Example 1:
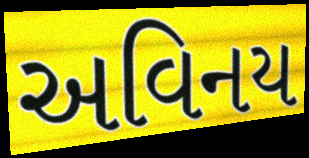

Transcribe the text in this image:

અવિનય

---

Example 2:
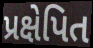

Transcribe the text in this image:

પ્રક્ષેપિત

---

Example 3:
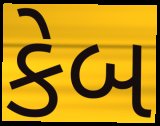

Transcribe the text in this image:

કેબ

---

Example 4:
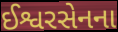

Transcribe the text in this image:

ઈશ્વરસેનના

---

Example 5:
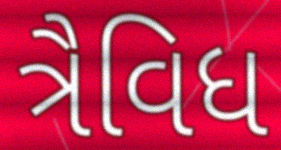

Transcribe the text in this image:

ત્રૈવિધ